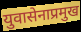
युवासेनाप्रमुख